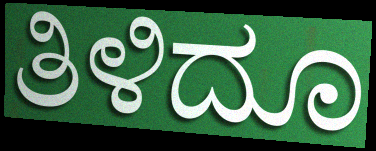
ತಿಳಿದೂ